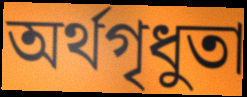
অর্থগৃধুতা